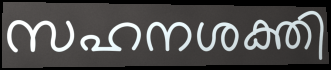
സഹനശക്തി